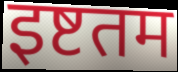
इष्टतम